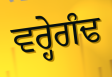
ਵਰ੍ਹੇਗੰਢ